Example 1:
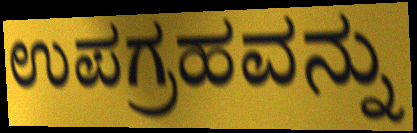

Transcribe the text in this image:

ಉಪಗ್ರಹವನ್ನು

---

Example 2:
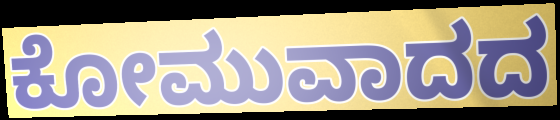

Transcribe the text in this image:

ಕೋಮುವಾದದ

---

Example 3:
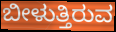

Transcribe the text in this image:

ಬೀಳುತ್ತಿರುವ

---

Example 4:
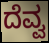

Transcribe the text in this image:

ದೆವ್ವ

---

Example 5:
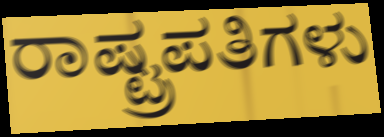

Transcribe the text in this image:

ರಾಷ್ಟ್ರಪತಿಗಳು